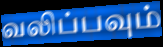
வலிப்பவும்